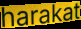
harakat